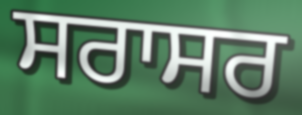
ਸਰਾਸਰ